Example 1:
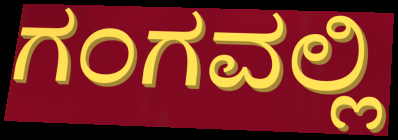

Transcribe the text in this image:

ಗಂಗವಲ್ಲಿ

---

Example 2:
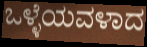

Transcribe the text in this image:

ಒಳ್ಳೆಯವಳಾದ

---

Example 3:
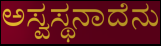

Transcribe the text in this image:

ಅಸ್ವಸ್ಥನಾದೆನು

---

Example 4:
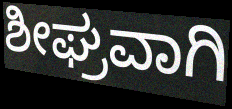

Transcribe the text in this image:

ಶೀಘ್ರವಾಗಿ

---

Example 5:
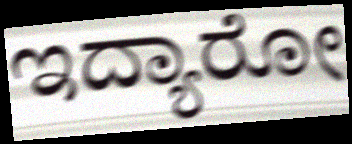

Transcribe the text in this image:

ಇದ್ಯಾರೋ